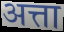
अत्ता